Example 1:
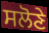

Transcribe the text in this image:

ਸਲੋਣੇ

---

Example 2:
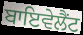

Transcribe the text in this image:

ਬਾਇਵੇਲੈਂਟ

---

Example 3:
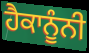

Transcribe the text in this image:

ਹੈਕਾਨੂੰਨੀ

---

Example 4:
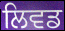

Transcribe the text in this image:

ਲਿਵਡ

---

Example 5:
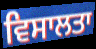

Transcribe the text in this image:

ਵਿਸਾਲਤਾ